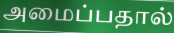
அமைப்பதால்